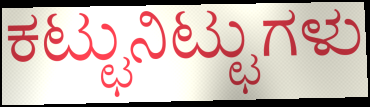
ಕಟ್ಟುನಿಟ್ಟುಗಳು